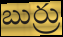
బుర్రు